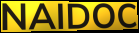
NAIDOC